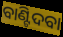
ବାଣ୍ଟିଦବା